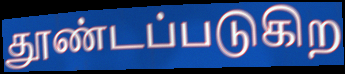
தூண்டப்படுகிற